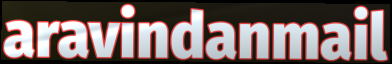
aravindanmail